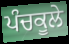
ਪੰਚਕੂਲੇ